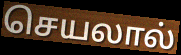
செயலால்